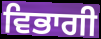
ਵਿਭਾਗੀ